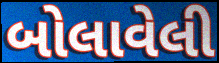
બોલાવેલી